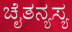
ಚೈತನ್ಯಸ್ಯ